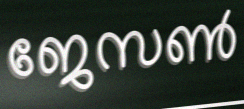
ജേസൺ